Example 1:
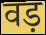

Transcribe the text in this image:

वड़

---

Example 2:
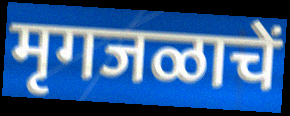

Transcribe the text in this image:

मृगजळाचें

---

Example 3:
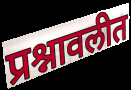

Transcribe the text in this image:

प्रश्नावलीत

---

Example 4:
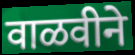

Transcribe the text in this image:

वाळवीने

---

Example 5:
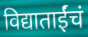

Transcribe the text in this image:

विद्याताईंचं